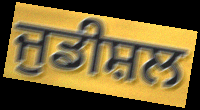
ਜੁਡੀਸ਼ਲ